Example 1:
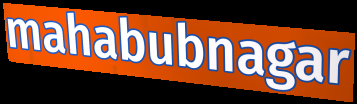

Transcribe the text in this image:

mahabubnagar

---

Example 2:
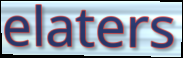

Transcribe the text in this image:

elaters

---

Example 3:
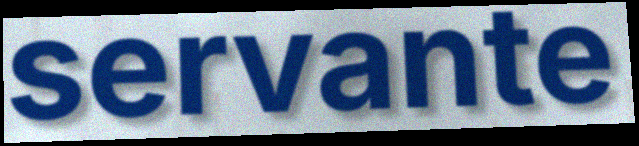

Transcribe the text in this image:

servante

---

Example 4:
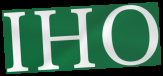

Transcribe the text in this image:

IHO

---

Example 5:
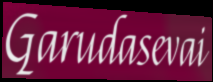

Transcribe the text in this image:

Garudasevai